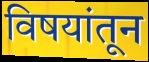
विषयांतून